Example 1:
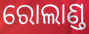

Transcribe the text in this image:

ରୋଲାଣ୍ଡ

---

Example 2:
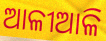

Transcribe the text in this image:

ଆଳୀଆଳି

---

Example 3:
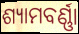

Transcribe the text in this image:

ଶ୍ୟାମବର୍ଣ୍ଣା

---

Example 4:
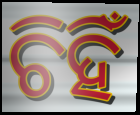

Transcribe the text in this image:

ଚିହିଁ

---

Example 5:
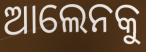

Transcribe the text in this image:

ଆଲେନକୁ